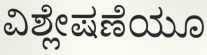
ವಿಶ್ಲೇಷಣೆಯೂ